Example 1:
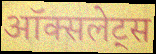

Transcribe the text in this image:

ऑक्सलेट्स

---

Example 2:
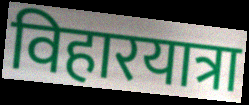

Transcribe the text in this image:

विहारयात्रा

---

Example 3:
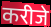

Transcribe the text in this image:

करीजे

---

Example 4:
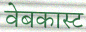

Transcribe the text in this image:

वेबकास्ट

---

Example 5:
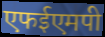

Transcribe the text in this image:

एफईएमपी